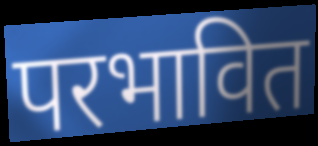
परभावित